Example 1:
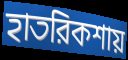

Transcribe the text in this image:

হাতরিকশায়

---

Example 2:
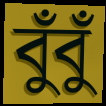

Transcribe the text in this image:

বুঁবুঁ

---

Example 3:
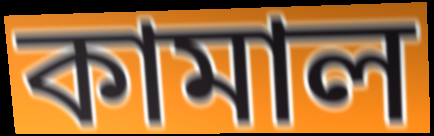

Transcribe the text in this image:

কামাল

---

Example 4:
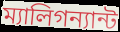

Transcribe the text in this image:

ম্যালিগন্যান্ট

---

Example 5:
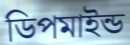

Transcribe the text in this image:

ডিপমাইন্ড